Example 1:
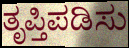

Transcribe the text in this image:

ತೃಪ್ತಿಪಡಿಸು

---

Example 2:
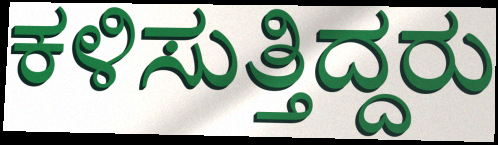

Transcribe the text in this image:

ಕಳಿಸುತ್ತಿದ್ದರು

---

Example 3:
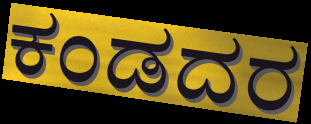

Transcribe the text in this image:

ಕಂಡದರ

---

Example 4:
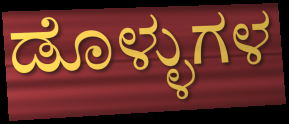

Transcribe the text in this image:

ಡೊಳ್ಳುಗಳ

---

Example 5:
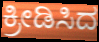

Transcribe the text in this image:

ಕ್ರೀಡಿಸಿದ